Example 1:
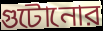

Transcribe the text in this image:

গুটোনোর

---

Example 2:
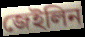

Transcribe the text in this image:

জেইলিন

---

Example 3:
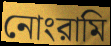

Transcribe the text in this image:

নোংরামি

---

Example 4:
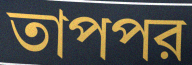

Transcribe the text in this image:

তাপপর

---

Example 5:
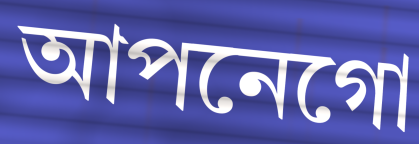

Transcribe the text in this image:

আপনেগো